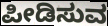
ಪೀಡಿಸುವ